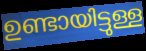
ഉണ്ടായിട്ടുള്ള